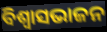
ବିଶ୍ଵାସଭାଜନ